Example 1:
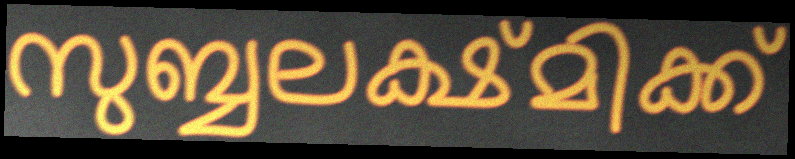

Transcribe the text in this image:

സുബ്ബലക്ഷ്മിക്ക്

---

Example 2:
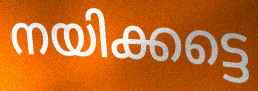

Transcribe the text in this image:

നയിക്കട്ടെ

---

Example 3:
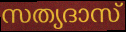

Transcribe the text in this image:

സത്യദാസ്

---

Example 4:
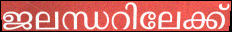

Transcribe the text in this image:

ജലന്ധറിലേക്ക്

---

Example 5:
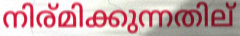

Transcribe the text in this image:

നിര്മിക്കുന്നതില്